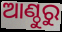
ଆଣ୍ଠୁରୁ